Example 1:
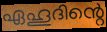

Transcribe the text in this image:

ഏഹൂദിന്റെ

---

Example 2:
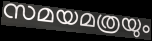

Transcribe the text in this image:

സമയമത്രയും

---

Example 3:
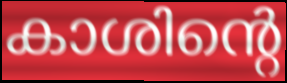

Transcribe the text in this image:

കാശിന്റെ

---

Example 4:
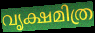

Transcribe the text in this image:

വൃക്ഷമിത്ര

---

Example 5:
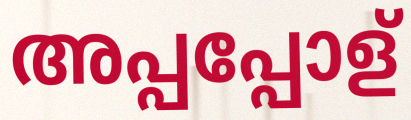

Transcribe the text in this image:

അപ്പപ്പോള്